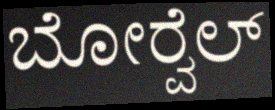
ಬೋರ್‍ವೆಲ್